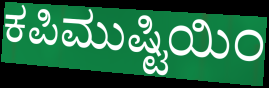
ಕಪಿಮುಷ್ಟಿಯಿಂ